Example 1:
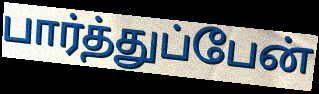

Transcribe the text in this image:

பார்த்துப்பேன்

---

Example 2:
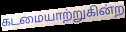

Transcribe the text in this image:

கடமையாற்றுகின்ற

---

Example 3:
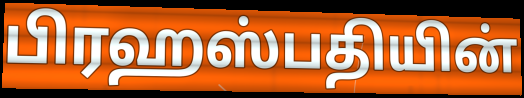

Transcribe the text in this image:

பிரஹஸ்பதியின்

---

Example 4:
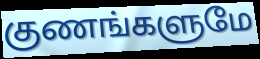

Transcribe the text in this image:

குணங்களுமே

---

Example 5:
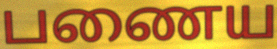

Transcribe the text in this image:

பணைய